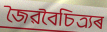
জৈৱবৈচিত্ৰ্যৰ